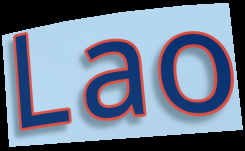
Lao